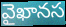
వైఖానస